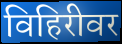
विहिरीवर